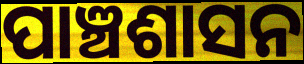
ପାଞ୍ଚଶାସନ